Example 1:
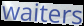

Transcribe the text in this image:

waiters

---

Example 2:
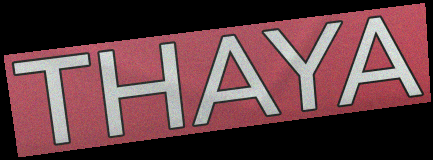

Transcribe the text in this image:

THAYA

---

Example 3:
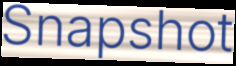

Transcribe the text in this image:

Snapshot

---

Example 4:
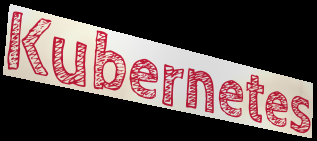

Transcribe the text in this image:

Kubernetes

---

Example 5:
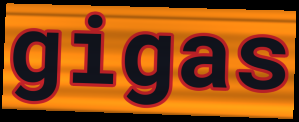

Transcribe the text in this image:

gigas